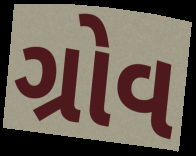
ગ્રોવ